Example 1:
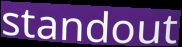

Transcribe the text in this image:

standout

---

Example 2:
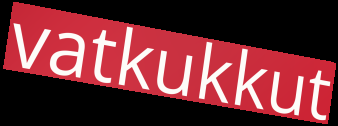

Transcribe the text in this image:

vatkukkut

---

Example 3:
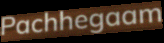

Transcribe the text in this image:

Pachhegaam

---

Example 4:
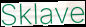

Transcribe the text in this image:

Sklave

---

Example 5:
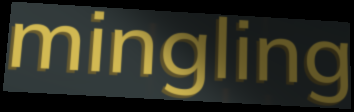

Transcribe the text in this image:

mingling